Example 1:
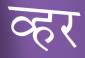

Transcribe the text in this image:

व्हर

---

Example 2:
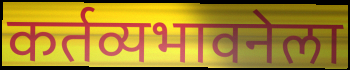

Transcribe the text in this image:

कर्तव्यभावनेला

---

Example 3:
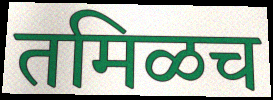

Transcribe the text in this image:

तमिळच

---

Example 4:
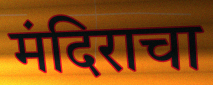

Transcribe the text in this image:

मंदिराचा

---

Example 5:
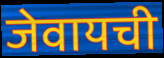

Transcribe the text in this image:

जेवायची